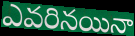
ఎవరినయినా